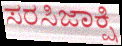
ಸರಸಿಜಾಕ್ಷಿ